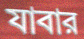
যাবার